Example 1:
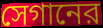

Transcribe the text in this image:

সেগানের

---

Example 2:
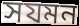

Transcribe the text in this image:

সযমন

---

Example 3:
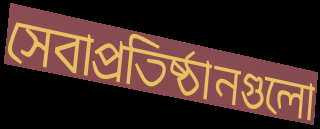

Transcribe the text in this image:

সেবাপ্রতিষ্ঠানগুলো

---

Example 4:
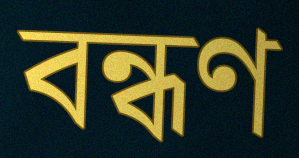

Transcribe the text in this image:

বন্ধণ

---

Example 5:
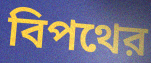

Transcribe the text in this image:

বিপথের